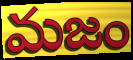
మజం